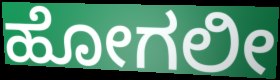
ಹೋಗಲೀ